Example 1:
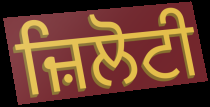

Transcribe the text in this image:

ਜ਼ਿਲੋਟੀ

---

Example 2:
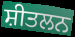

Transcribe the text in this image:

ਸ਼ੀਤਲਨ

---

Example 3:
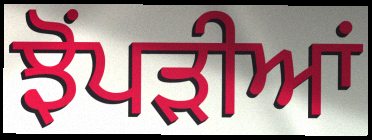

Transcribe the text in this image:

ਝੋਂਪੜੀਆਂ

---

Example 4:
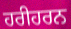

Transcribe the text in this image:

ਹਰੀਹਰਨ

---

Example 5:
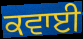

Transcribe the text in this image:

ਕਵਾਈ